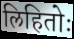
लिहितोः